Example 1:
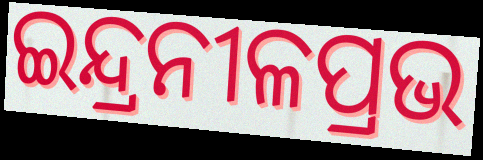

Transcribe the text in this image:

ଇନ୍ଦ୍ରନୀଳପ୍ରଭ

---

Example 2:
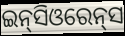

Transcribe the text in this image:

ଇନ୍‌ସିଓରେନ୍‌ସ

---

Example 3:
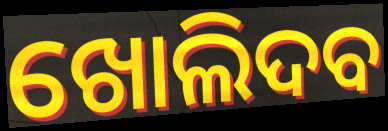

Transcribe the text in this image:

ଖୋଲିଦବ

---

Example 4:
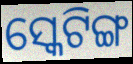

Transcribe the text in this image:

ସ୍କେଟିଙ୍ଗ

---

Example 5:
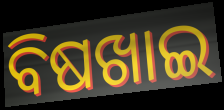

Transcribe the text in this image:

ବିଷଖାଇ